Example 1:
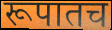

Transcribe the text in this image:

रूपातच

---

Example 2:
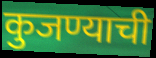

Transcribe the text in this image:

कुजण्याची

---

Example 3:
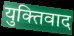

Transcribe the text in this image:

युक्‍तिवाद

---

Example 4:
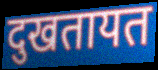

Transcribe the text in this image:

दुखतायत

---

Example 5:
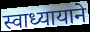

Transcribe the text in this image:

स्वाध्यायाने